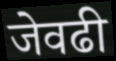
जेवढी